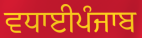
ਵਧਾਈਪੰਜਾਬ